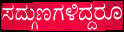
ಸದ್ಗುಣಗಳಿದ್ದರೂ